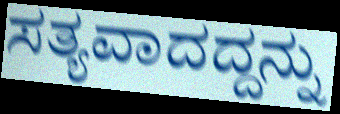
ಸತ್ಯವಾದದ್ದನ್ನು